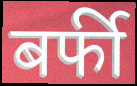
बर्फी